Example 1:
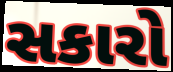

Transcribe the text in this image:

સકારો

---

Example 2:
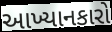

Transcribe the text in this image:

આખ્યાનકારો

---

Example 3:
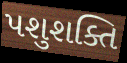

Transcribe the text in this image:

પશુશક્તિ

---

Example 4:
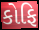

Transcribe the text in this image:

કોફિ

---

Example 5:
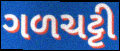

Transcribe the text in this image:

ગળચટ્ટી